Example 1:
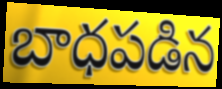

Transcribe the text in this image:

బాధపడిన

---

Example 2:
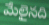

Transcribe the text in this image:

మేలైనది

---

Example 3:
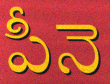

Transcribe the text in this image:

పీనె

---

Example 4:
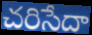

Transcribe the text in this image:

చరిసేదా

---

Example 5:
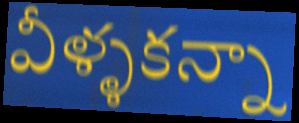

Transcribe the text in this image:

వీళ్ళకన్నా